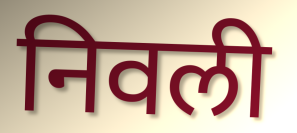
निवली